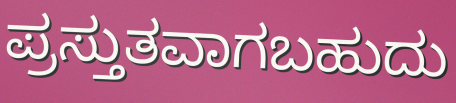
ಪ್ರಸ್ತುತವಾಗಬಹುದು